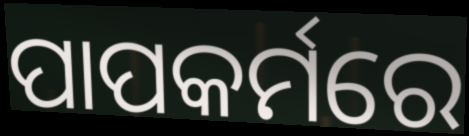
ପାପକର୍ମରେ